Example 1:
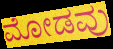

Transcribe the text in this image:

ಮೋಡವು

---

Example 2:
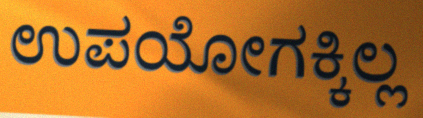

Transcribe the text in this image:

ಉಪಯೋಗಕ್ಕಿಲ್ಲ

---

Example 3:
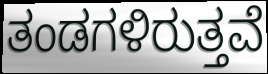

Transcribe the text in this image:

ತಂಡಗಳಿರುತ್ತವೆ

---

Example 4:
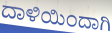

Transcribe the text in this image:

ದಾಳಿಯಿಂದಾಗಿ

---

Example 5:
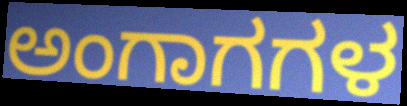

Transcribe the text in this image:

ಅಂಗಾಗಗಳ